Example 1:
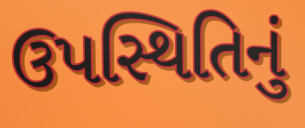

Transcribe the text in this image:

ઉપસ્થિતિનું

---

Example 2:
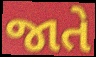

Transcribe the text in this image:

જાતે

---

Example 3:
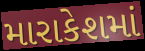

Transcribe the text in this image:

મારાકેશમાં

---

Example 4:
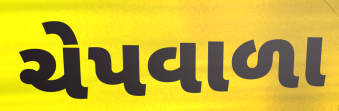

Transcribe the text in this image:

ચેપવાળા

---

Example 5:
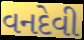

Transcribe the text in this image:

વનદેવી